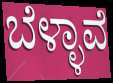
ಬೆಳ್ಳಾವೆ